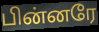
பின்னரே